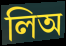
লিঅ